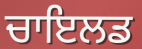
ਚਾਇਲਡ